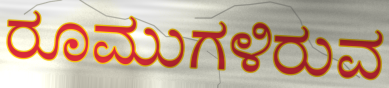
ರೂಮುಗಳಿರುವ